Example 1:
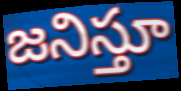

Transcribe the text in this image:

జనిస్తూ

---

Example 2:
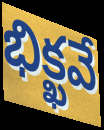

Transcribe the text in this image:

భిక్ఖవే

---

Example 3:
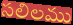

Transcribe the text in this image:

సలిలము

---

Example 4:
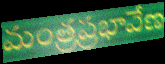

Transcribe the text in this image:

మంత్రప్రభావేణ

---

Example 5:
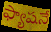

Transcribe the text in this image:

ఫ్యాషనే